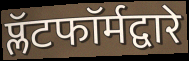
प्लॅटफॉर्मद्वारे